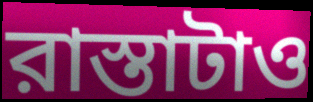
রাস্তাটাও